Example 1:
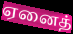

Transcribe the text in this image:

ஏனைத்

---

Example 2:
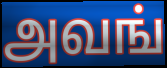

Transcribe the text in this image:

அவங்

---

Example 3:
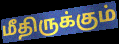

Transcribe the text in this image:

மீதிருக்கும்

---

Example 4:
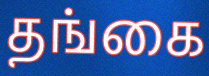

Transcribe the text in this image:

தங்கை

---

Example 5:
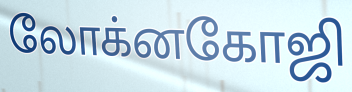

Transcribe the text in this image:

லோக்னகோஜி